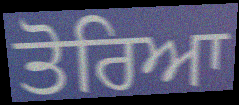
ਤੋਰਿਆ